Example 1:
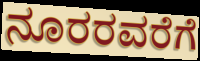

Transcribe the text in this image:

ನೂರರವರೆಗೆ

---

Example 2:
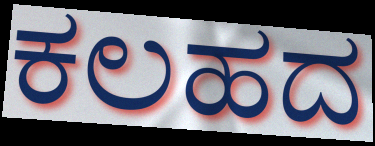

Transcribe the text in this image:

ಕಲಹದ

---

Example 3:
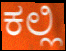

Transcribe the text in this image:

ಕಲ್ಲಿ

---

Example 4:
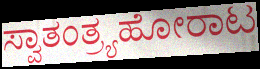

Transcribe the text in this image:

ಸ್ವಾತಂತ್ರ್ಯಹೋರಾಟ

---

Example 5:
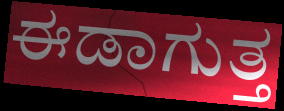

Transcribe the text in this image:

ಈಡಾಗುತ್ತ